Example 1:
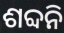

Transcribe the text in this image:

ଶବ୍ଦନି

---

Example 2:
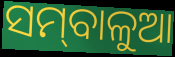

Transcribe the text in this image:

ସମ୍‌ବାଳୁଆ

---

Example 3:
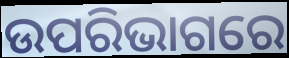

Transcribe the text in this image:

ଉପରିଭାଗରେ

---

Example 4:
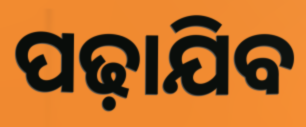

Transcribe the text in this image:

ପଢ଼ାଯିବ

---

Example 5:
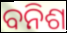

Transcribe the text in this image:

ବନିଶ